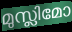
മുസ്ലിമോ